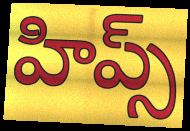
హిప్స్